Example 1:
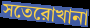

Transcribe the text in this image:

সতেরোখানা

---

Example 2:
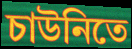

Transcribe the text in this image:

চাউনিতে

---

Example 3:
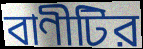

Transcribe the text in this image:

বাণীটির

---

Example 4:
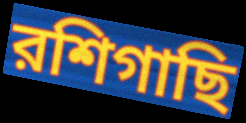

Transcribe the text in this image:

রশিগাছি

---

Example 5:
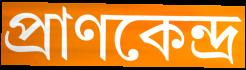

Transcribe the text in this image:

প্রাণকেন্দ্র